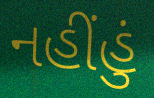
નહીંહું